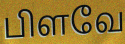
பிளவே